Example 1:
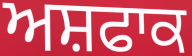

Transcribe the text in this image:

ਅਸ਼ਫਾਕ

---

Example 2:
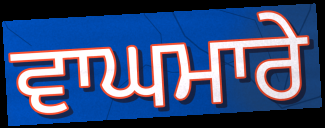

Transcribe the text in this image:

ਵਾਘਮਾਰੇ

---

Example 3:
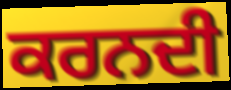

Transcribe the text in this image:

ਕਰਨਦੀ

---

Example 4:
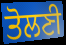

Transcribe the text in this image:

ਤੋਲਣੀ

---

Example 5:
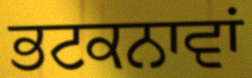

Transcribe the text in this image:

ਭਟਕਨਾਵਾਂ